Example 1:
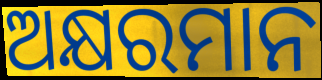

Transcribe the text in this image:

ଅକ୍ଷରମାନ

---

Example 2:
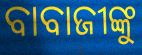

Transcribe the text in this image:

ବାବାଜୀଙ୍କୁ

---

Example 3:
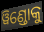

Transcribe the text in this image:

ୱିଣ୍ଡୋକୁ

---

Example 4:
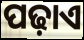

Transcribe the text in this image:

ପଢ଼ାଏ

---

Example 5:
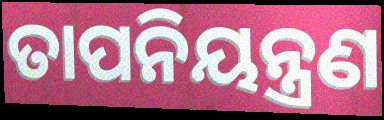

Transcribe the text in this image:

ତାପନିୟନ୍ତ୍ରଣ